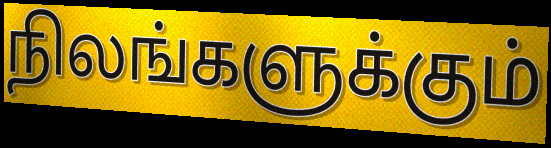
நிலங்களுக்கும்